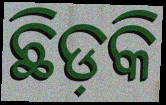
ଛିଡ଼କି